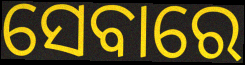
ସେବାରେ